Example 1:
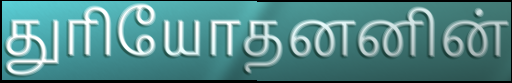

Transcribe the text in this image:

துரியோதனனின்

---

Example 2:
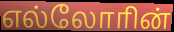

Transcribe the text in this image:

எல்லோரின்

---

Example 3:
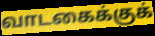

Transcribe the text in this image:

வாடகைக்குக்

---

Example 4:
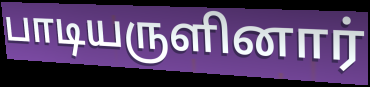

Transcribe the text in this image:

பாடியருளினார்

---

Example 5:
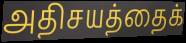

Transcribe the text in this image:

அதிசயத்தைக்